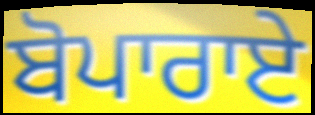
ਬੋਪਾਰਾਏ